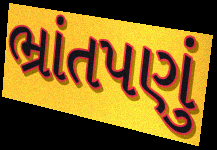
ભ્રાંતપણું